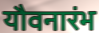
यौवनारंभ